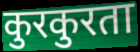
कुरकुरता